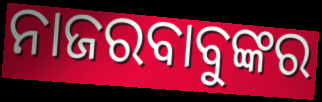
ନାଜରବାବୁଙ୍କର